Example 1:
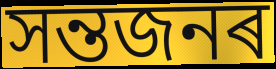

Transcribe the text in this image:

সন্তজনৰ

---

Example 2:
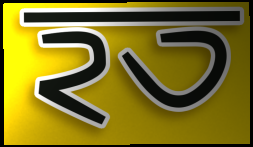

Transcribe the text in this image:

হত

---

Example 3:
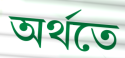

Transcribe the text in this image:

অৰ্থতে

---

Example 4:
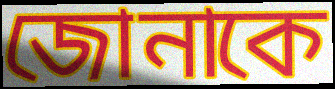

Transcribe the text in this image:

জোনাকে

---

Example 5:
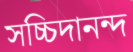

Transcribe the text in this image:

সচ্চিদানন্দ